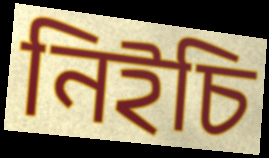
নিইচি